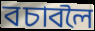
বচাবলৈ